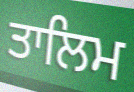
ਤਾਲਿਮ